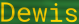
Dewis